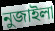
নুজাইলা